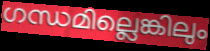
ഗന്ധമില്ലെങ്കിലും